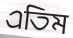
এতিম